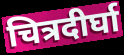
चित्रदीर्घा